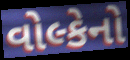
વોલ્કેનો